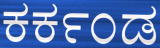
ಕರ್ಕಂಡ